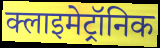
क्लाइमेट्रॉनिक